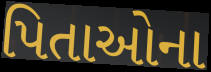
પિતાઓના